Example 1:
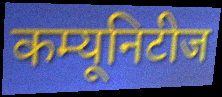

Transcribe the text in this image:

कम्यूनिटीज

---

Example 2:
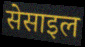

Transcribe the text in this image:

सेसाइल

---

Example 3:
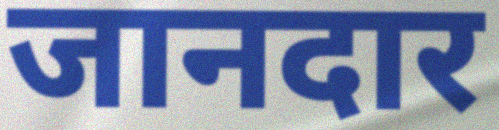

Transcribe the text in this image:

जानदार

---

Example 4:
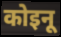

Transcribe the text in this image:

कोइनू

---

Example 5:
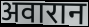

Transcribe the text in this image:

अवारान